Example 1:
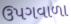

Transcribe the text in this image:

ઉપગવાળા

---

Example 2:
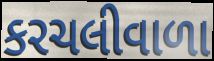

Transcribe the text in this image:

કરચલીવાળા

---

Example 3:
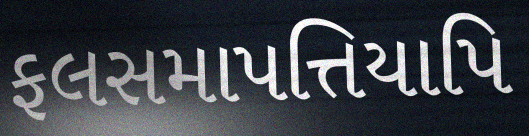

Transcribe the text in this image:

ફલસમાપત્તિયાપિ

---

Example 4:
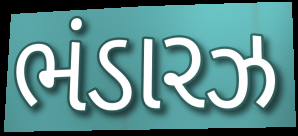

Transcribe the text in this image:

ભંડારઝ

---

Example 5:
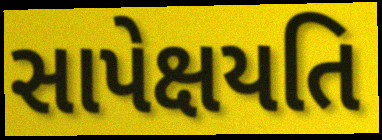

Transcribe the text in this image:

સાપેક્ષયતિ